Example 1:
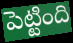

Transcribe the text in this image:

పెట్టింది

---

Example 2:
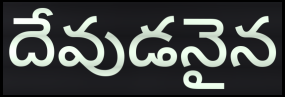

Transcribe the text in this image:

దేవుడనైన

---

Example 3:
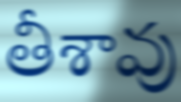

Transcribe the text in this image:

తీశావు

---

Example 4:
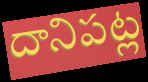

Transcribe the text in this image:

దానిపట్ల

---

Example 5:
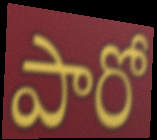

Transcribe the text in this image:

పారో